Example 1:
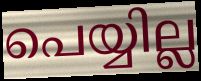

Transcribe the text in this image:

പെയ്യില്ല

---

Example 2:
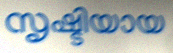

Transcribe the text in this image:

സൃഷ്ടിയായ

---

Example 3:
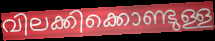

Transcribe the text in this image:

വിലക്കിക്കൊണ്ടുള്ള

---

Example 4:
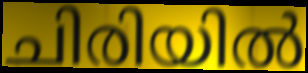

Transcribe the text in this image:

ചിരിയിൽ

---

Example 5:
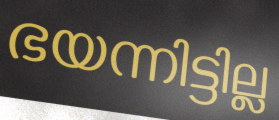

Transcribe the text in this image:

ഭയന്നിട്ടില്ല